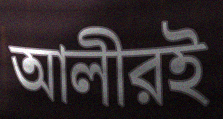
আলীরই